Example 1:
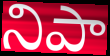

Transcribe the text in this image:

నిపా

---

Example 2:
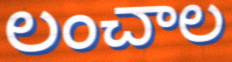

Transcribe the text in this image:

లంచాల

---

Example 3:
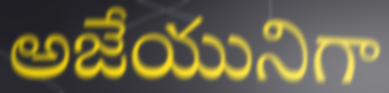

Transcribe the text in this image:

అజేయునిగా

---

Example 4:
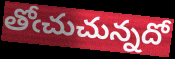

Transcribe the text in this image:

తోఁచుచున్నదో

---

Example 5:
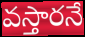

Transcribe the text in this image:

వస్తారనే